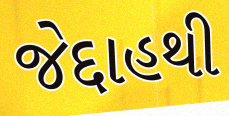
જેદ્દાહથી